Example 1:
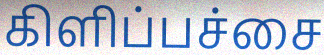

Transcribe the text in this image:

கிளிப்பச்சை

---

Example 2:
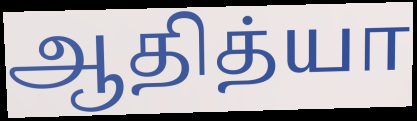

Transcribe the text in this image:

ஆதித்யா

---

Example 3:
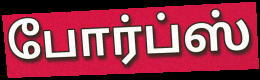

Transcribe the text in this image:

போர்ப்ஸ்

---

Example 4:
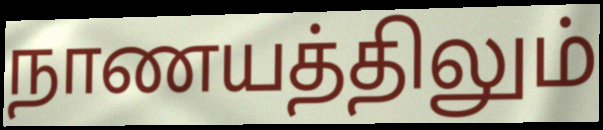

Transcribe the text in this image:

நாணயத்திலும்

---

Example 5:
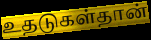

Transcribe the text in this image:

உதடுகள்தான்